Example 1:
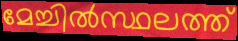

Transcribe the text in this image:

മേച്ചിൽസ്ഥലത്ത്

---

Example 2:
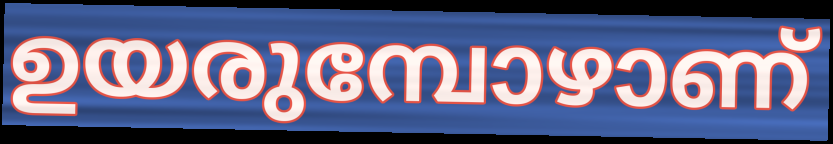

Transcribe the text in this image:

ഉയരുമ്പോഴാണ്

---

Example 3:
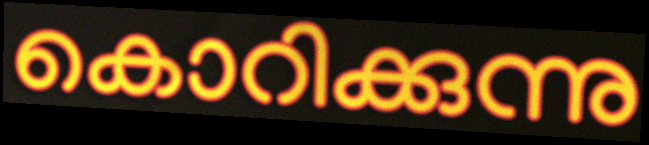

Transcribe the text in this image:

കൊറിക്കുന്നു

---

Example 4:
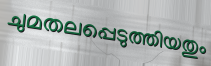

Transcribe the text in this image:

ചുമതലപ്പെടുത്തിയതും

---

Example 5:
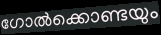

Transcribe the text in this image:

ഗോൽക്കൊണ്ടയും